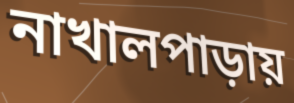
নাখালপাড়ায়